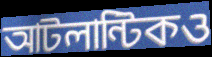
আটলান্টিকও